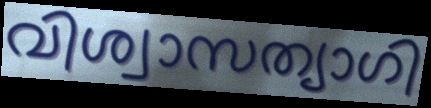
വിശ്വാസത്യാഗി